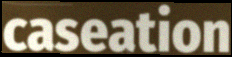
caseation